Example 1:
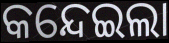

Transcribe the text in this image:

କନ୍ଦେଇଲା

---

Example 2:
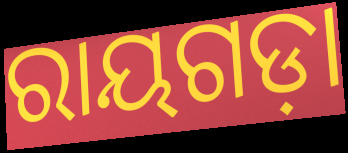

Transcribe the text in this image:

ରାୟଗଡ଼ା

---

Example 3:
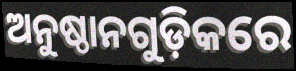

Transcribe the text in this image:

ଅନୁଷ୍ଠାନଗୁଡ଼ିକରେ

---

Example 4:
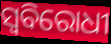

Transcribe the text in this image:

ସ୍ୱବିରୋଧୀ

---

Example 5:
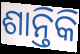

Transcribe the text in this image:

ଶାନ୍ତିକି